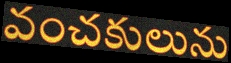
వంచకులును